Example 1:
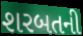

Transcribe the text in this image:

શરબતની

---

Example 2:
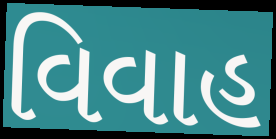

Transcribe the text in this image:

વિવાહ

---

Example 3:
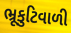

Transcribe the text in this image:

ભ્રૂકુટિવાળી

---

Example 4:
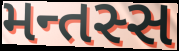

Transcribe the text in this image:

મન્તસ્સ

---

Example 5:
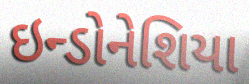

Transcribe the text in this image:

ઇન્ડોનેશિયા